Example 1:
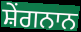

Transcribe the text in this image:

ਸ਼ੇਂਗਨਾਨ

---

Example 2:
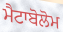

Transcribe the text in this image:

ਮੈਟਾਬੋਲੋਮ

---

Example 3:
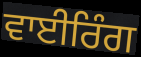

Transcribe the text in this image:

ਵਾਈਰਿੰਗ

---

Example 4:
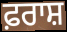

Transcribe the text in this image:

ਫ਼ਰਾਸ਼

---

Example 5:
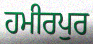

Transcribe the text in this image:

ਹਮੀਰਪੁਰ